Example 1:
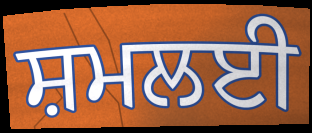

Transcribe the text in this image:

ਸ਼ਮਲਈ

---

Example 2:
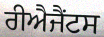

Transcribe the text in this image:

ਰੀਐਜੈਂਟਸ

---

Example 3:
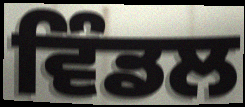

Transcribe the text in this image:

ਵਿੰਡਲ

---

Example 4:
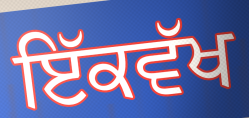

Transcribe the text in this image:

ਇੱਕਵੱਖ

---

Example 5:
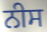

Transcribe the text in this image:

ਨੀਸ